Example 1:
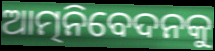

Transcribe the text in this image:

ଆତ୍ମନିବେଦନକୁ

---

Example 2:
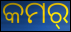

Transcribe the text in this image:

କମର୍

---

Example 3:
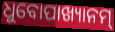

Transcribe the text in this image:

ଧୁବୋପାଖ୍ୟାନମ୍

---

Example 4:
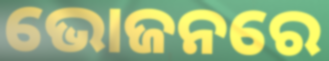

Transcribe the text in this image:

ଭୋଜନରେ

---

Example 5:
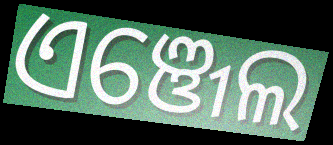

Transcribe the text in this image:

ଏଞ୍ଜେଲ